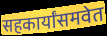
सहकार्यांसमवेत